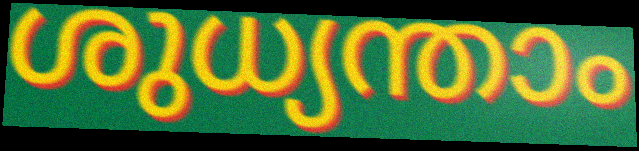
ശുധ്യന്താം